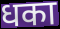
धका